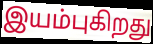
இயம்புகிறது